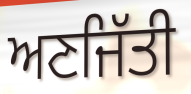
ਅਣਜਿੱਤੀ